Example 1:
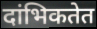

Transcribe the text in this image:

दांभिकतेत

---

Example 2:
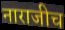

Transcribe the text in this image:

नाराजीच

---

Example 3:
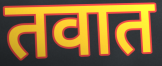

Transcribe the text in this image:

तवात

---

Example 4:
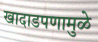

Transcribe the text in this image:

खादाडपणामुळे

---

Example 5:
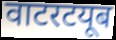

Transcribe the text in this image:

वाटरटयूब